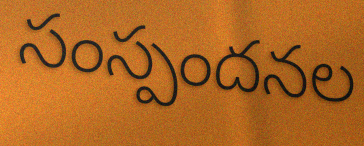
సంస్పందనల